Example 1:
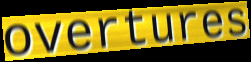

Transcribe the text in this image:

overtures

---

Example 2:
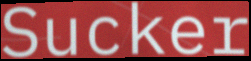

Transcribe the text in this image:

Sucker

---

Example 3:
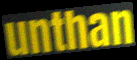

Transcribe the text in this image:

unthan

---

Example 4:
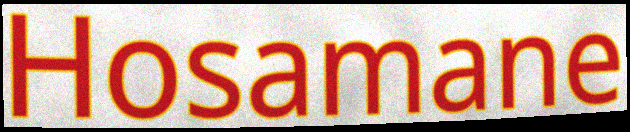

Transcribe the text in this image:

Hosamane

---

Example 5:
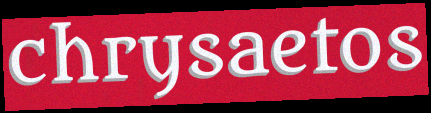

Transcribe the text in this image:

chrysaetos